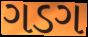
ગડગ